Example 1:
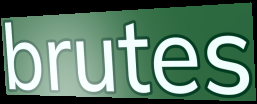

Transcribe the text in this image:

brutes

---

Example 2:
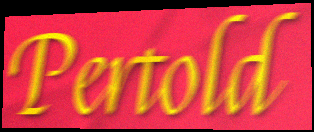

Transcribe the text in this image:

Pertold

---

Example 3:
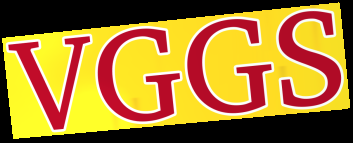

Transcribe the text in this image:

VGGS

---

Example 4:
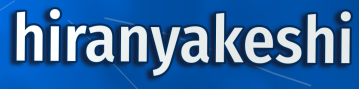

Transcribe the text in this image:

hiranyakeshi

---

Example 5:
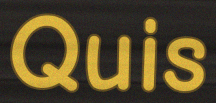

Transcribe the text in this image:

Quis